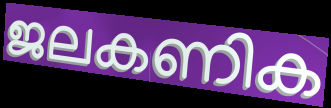
ജലകണിക